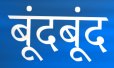
बूंदबूंद